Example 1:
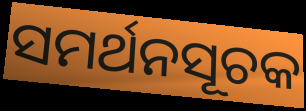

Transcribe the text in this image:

ସମର୍ଥନସୂଚକ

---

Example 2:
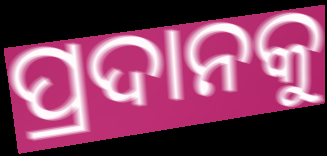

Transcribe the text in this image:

ପ୍ରଦାନକୁ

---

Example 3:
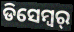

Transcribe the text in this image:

ଡିସେମ୍ବର୍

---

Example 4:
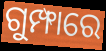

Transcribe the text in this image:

ଗୁମ୍ଫାରେ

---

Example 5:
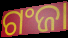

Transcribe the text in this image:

ଗଂଜା